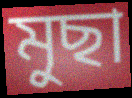
মুছা